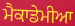
ਮੈਕਾਡੇਮੀਆ